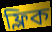
ফ্লিক